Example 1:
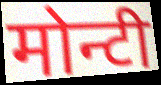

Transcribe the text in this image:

मोन्टी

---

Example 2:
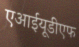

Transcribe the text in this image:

एआईयूडीएफ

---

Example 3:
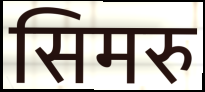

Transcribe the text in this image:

सिमरु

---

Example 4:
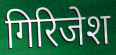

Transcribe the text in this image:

गिरिजेश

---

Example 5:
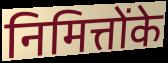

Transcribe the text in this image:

निमित्तोंके